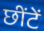
छींटें